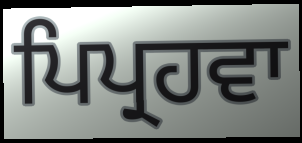
ਪਿਪ੍ਰਹਵਾ